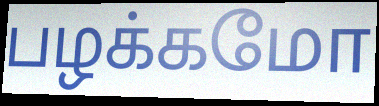
பழக்கமோ